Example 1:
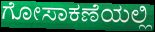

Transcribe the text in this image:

ಗೋಸಾಕಣೆಯಲ್ಲಿ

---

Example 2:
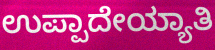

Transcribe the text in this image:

ಉಪ್ಪಾದೇಯ್ಯಾತಿ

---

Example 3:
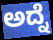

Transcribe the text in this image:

ಅದ್ನೆ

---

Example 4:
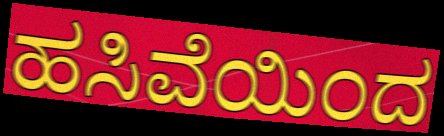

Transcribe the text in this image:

ಹಸಿವೆಯಿಂದ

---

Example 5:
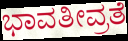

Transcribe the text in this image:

ಭಾವತೀವ್ರತೆ